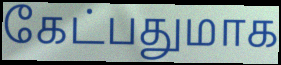
கேட்பதுமாக